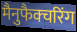
मैनुफैक्चरिंग